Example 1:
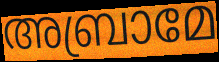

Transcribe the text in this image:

അബ്രാമേ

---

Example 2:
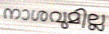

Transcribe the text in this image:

നാശവുമില്ല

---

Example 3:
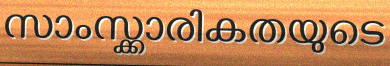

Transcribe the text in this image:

സാംസ്ക്കാരികതയുടെ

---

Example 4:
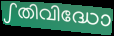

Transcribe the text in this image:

ഽതിവിദ്ധോ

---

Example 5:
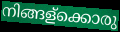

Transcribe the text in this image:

നിങ്ങള്ക്കൊരു